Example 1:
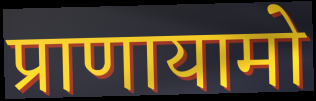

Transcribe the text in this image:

प्राणायामो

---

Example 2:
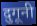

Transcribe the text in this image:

दुगूनी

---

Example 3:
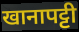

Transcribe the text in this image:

खानापट्टी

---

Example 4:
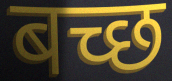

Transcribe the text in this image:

बच्छ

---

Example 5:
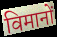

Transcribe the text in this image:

विमानों